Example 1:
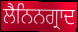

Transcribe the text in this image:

ਲੈਨਿਨਗ੍ਰਾਦ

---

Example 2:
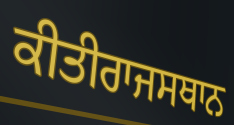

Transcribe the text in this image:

ਕੀਤੀਰਾਜਸਥਾਨ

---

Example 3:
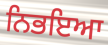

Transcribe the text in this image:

ਨਿਭਇਆ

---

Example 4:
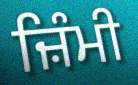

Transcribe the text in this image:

ਜ਼ਿੰਮੀ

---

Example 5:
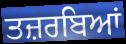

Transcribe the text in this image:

ਤਜ਼ਰਬਿਆਂ